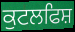
ਕੁਟਲਫਿਸ਼